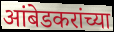
आंबेडकरांच्या